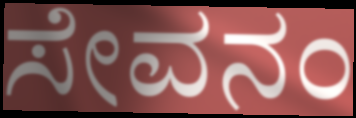
ಸೇವನಂ